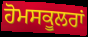
ਹੋਮਸਕੂਲਰਾਂ